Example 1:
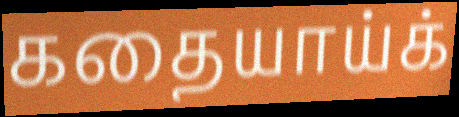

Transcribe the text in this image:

கதையாய்க்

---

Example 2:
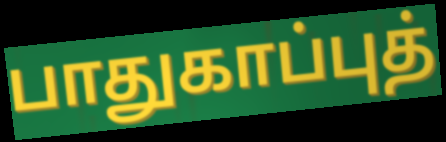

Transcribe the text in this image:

பாதுகாப்புத்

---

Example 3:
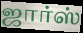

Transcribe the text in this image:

ஜார்ஸ்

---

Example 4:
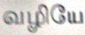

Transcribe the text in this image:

வழியே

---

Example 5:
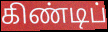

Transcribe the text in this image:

கிண்டிப்